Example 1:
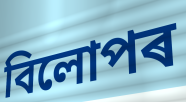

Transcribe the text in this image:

বিলোপৰ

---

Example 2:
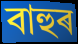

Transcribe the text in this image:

বাহুৰ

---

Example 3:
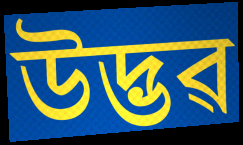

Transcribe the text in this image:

উদ্ভৱ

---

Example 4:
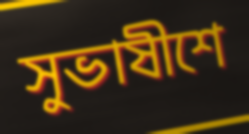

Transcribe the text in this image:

সুভাষীশে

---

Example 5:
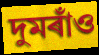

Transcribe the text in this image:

দুমৰাঁও